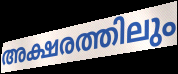
അക്ഷരത്തിലും